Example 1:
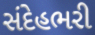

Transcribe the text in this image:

સંદેહભરી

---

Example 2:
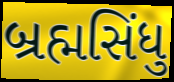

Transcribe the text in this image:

બ્રહ્મસિંધુ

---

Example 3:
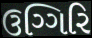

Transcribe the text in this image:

ઉગ્ગિરિ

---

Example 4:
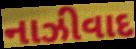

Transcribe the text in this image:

નાઝીવાદ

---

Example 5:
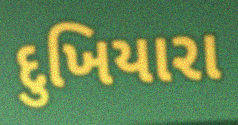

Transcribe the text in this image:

દુખિયારા